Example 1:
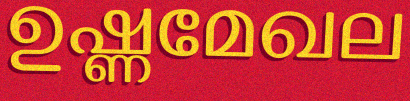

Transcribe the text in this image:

ഉഷ്ണമേഖല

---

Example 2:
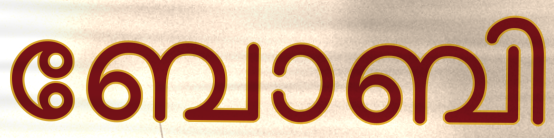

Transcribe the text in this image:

ബോബി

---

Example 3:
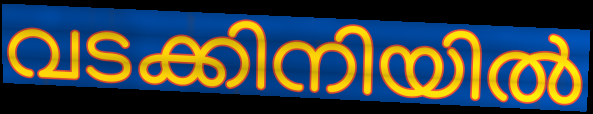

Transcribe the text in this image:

വടക്കിനിയിൽ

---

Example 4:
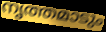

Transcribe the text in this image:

നൃത്തമാടും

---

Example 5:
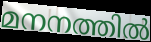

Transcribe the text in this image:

മനനത്തിൽ